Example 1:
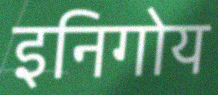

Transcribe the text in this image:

इनिगोय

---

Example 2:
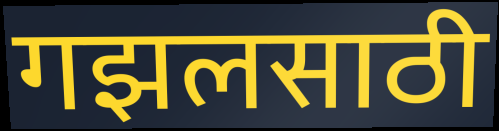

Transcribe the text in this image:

गझलसाठी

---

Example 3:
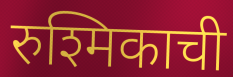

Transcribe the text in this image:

रुश्मिकाची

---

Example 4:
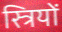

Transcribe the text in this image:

स्त्रियों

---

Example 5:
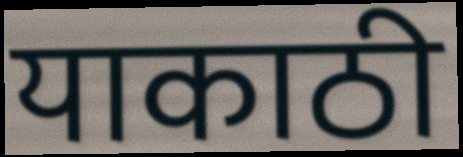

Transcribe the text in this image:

याकाठी